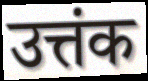
उत्तंक